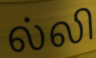
ல்லி